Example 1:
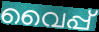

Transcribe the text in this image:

വൈപ്പ്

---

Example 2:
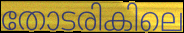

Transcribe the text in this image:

തോടരികിലെ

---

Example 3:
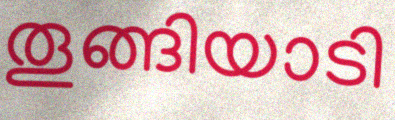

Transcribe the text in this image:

തൂങ്ങിയാടി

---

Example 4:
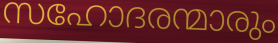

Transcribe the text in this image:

സഹോദരന്മാരും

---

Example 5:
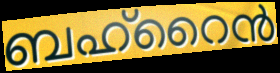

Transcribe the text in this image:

ബഹ്റൈൻ